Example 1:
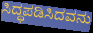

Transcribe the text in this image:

ಸಿದ್ಧಪಡಿಸಿದವನು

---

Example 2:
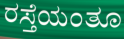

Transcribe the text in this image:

ರಸ್ತೆಯಂತೂ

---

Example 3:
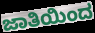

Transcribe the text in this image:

ಜಾತಿಯಿಂದ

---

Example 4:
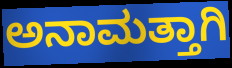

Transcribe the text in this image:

ಅನಾಮತ್ತಾಗಿ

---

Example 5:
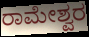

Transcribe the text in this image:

ರಾಮೇಶ್ವರ